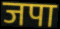
जपा